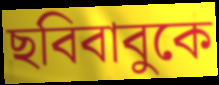
ছবিবাবুকে